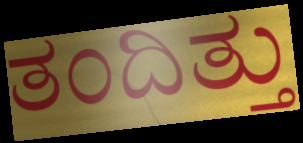
ತಂದಿತ್ತು